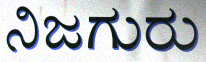
ನಿಜಗುರು